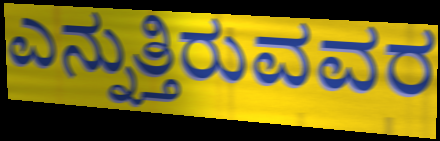
ಎನ್ನುತ್ತಿರುವವರ